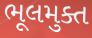
ભૂલમુક્ત